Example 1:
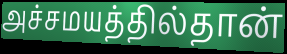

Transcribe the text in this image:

அச்சமயத்தில்தான்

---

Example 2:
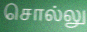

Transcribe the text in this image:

சொல்லு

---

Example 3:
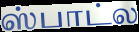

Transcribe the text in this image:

ஸ்பாட்ல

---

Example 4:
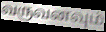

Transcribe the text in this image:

வருவனவும்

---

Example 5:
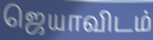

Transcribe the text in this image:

ஜெயாவிடம்